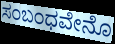
ಸಂಬಂಧವೇನೊ